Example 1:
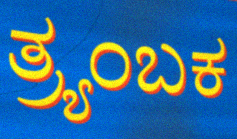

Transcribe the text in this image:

ತ್ರ್ಯಂಬಕ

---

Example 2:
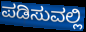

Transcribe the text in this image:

ಪಡಿಸುವಲ್ಲಿ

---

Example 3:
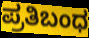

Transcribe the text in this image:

ಪ್ರತಿಬಂಧ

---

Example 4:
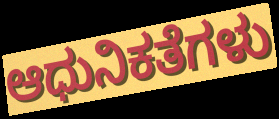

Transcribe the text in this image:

ಆಧುನಿಕತೆಗಳು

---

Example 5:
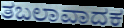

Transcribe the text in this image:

ತಬಲಾವಾದಕ